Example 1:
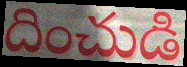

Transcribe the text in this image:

దించుడి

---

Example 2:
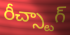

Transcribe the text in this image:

రీచ్స్టాగ్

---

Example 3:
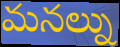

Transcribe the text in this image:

మనల్ను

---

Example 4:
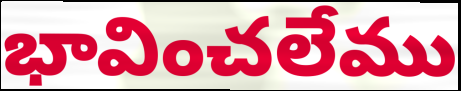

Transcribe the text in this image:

భావించలేము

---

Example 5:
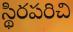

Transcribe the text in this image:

స్థిరపరిచి